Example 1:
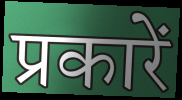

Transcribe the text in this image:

प्रकारें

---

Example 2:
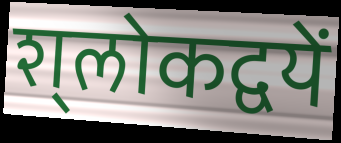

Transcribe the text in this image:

श्लोकद्वयें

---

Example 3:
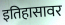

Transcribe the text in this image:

इतिहासावर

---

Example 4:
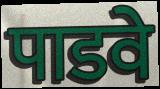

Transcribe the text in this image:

पाडवे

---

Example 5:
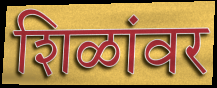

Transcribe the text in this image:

शिळांवर